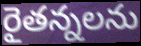
రైతన్నలను